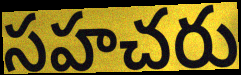
సహచరు